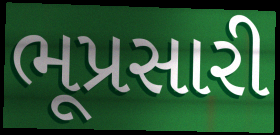
ભૂપ્રસારી